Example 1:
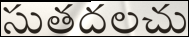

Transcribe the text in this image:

సుతదలచు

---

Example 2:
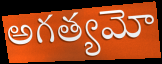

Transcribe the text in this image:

అగత్యమో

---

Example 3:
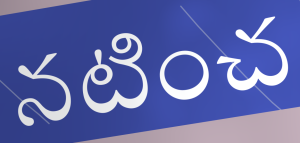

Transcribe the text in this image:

నటించ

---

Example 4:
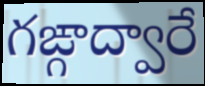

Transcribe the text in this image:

గఙ్గాద్వారే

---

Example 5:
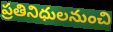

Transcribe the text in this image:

ప్రతినిధులనుంచి